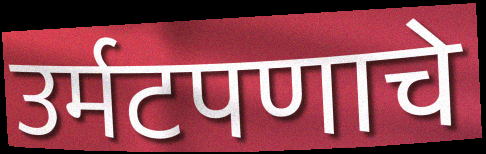
उर्मटपणाचे